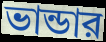
ভান্ডার